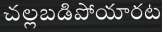
చల్లబడిపోయారట